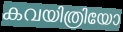
കവയിത്രിയോ